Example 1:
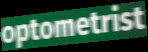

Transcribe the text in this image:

optometrist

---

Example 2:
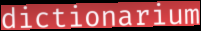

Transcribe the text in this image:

dictionarium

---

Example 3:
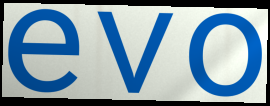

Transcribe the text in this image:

evo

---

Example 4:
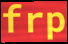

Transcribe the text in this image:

frp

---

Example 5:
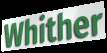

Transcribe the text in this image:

Whither